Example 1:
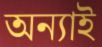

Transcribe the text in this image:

অন্যাই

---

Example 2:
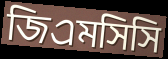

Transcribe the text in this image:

জিএমসিসি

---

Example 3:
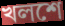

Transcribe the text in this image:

খলশে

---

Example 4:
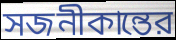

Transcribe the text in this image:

সজনীকান্তের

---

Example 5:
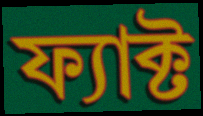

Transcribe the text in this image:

ফ্যাক্ট